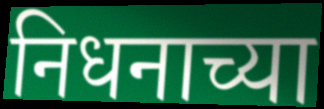
निधनाच्या